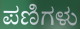
ಪಣಿಗಳು